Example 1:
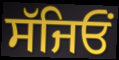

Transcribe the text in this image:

ਸੱਜਿਓਂ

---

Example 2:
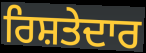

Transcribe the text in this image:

ਰਿਸ਼ਤੇਦਾਰ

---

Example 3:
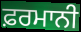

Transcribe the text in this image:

ਫ਼ਰਮਾਨੀ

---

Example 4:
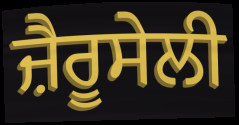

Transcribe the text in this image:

ਜ਼ੈਰੂਸੇਲੀ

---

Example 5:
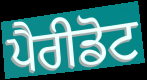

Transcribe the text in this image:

ਪੈਰੀਡੋਟ